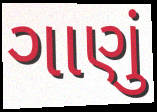
ગાણું